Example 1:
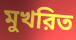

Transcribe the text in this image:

মুখরিত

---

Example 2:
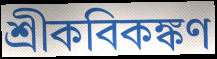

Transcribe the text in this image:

শ্রীকবিকঙ্কণ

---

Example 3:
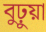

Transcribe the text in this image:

বুঢ়ুয়া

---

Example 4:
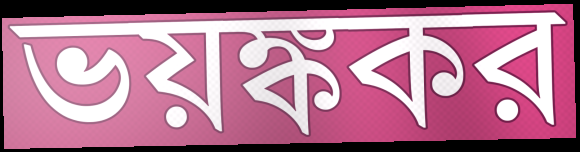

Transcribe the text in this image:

ভয়ঙ্ককর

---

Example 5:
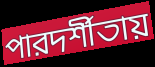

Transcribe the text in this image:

পারদর্শীতায়